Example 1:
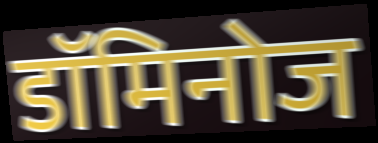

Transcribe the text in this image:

डॉमिनोज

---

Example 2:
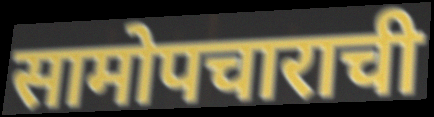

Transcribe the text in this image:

सामोपचाराची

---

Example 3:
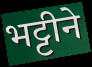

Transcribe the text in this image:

भट्टीने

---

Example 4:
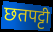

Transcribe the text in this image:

छतपट्टी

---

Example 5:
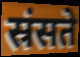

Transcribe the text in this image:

स्रंसते